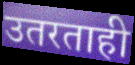
उतरताही